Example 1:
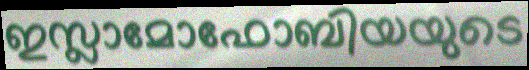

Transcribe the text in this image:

ഇസ്ലാമോഫോബിയയുടെ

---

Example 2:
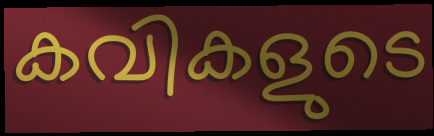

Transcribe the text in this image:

കവികളുടെ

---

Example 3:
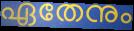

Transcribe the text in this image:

ഏതേനും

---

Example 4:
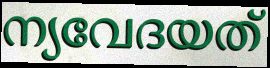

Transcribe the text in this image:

ന്യവേദയത്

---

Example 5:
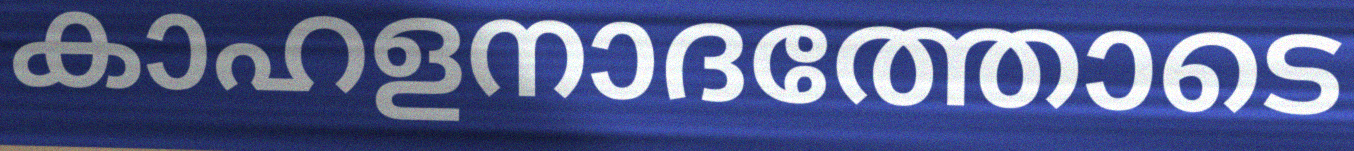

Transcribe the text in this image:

കാഹളനാദത്തോടെ